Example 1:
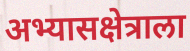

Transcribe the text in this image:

अभ्यासक्षेत्राला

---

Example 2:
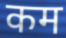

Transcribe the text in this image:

कम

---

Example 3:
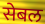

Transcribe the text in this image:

सेबल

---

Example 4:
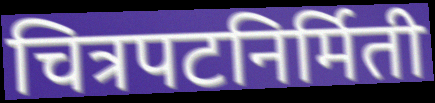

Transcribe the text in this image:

चित्रपटनिर्मिती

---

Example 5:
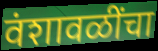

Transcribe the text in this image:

वंशावळींचा